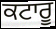
ਕਟਾਰੂ